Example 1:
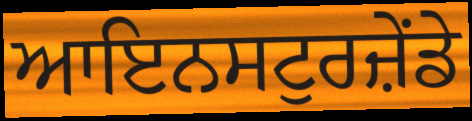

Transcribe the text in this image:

ਆਇਨਸਟੁਰਜ਼ੇਂਡੇ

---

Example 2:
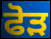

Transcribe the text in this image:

ਫੋਡ਼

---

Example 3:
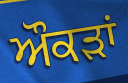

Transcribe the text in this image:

ਔਕਡ਼ਾਂ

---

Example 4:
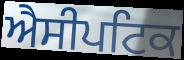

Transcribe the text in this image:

ਐਸੀਪਟਿਕ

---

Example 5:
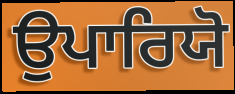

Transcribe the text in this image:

ਉਪਾਰਿਯੋ